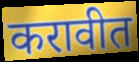
करावीत